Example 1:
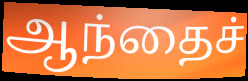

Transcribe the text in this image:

ஆந்தைச்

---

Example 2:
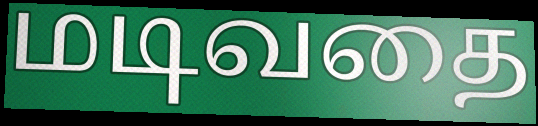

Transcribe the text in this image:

மடிவதை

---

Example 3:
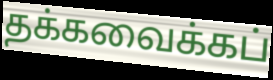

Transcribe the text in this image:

தக்கவைக்கப்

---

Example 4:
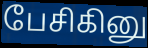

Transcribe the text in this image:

பேசிகினு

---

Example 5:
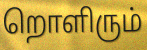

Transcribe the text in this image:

றொளிரும்